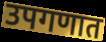
उपगणात